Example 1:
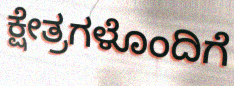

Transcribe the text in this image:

ಕ್ಷೇತ್ರಗಳೊಂದಿಗೆ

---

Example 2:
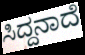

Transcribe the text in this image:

ಸಿದ್ದನಾದೆ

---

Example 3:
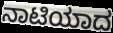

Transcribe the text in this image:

ನಾಟಿಯಾದ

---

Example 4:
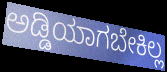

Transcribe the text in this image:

ಅಡ್ಡಿಯಾಗಬೇಕಿಲ್ಲ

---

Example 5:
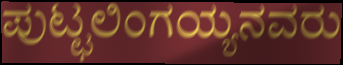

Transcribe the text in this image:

ಪುಟ್ಟಲಿಂಗಯ್ಯನವರು